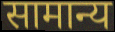
सामान्य